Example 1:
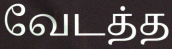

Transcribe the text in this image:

வேடத்த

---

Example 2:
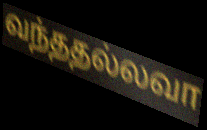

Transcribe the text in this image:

வந்ததல்லவா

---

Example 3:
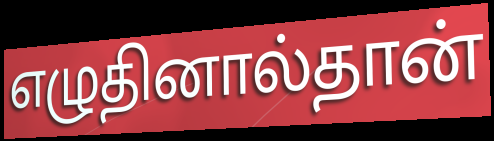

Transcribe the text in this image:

எழுதினால்தான்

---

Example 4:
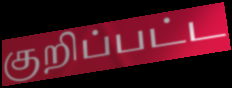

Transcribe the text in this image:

குறிப்பட்ட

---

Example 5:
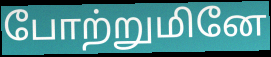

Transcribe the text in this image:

போற்றுமினே